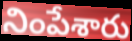
నింపేశారు